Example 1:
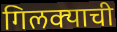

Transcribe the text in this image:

गिलक्याची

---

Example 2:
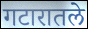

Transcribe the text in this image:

गटारातले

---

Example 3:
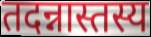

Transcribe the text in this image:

तदन्नास्तस्य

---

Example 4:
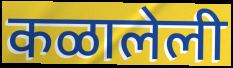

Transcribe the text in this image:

कळालेली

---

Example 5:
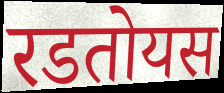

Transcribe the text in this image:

रडतोयस